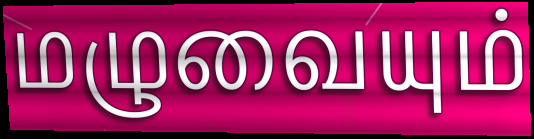
மழுவையும்